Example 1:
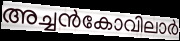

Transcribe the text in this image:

അച്ചൻകോവിലാർ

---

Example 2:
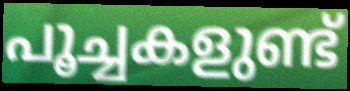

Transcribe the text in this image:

പൂച്ചകളുണ്ട്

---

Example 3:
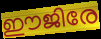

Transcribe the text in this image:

ഈജിരേ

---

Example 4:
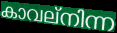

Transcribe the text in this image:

കാവല്നിന്ന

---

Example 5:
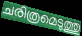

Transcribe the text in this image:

ചരിത്രമെടുത്തു